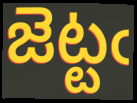
జెట్టఁ